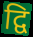
द्वि